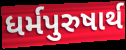
ધર્મપુરુષાર્થ